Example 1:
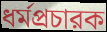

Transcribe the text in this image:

ধর্মপ্রচারক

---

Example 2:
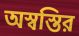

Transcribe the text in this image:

অস্বস্তির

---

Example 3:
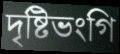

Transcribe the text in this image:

দৃষ্টিভংগি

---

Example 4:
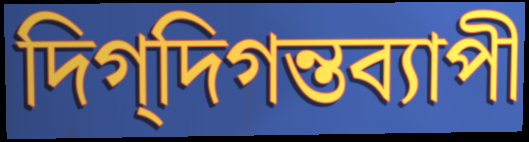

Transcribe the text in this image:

দিগ্‌দিগন্তব্যাপী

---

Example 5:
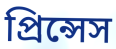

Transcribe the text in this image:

প্রিন্সেস